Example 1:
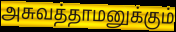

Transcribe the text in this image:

அசுவத்தாமனுக்கும்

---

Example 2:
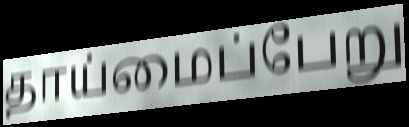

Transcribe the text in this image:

தாய்மைப்பேறு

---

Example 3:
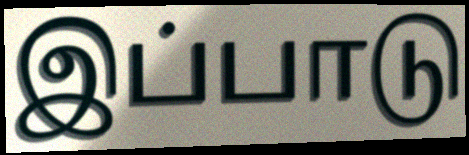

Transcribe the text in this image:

இப்பாடு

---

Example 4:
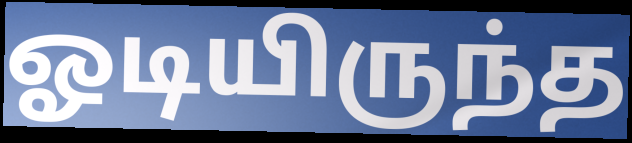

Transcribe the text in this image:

ஓடியிருந்த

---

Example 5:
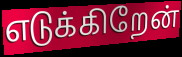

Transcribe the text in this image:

எடுக்கிறேன்